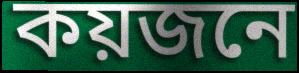
কয়জনে